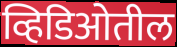
व्हिडिओतील